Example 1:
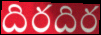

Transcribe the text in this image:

దిరదిర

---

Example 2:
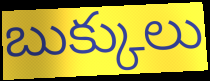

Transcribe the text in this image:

బుక్కులు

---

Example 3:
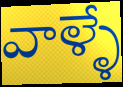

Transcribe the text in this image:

వాళ్ళే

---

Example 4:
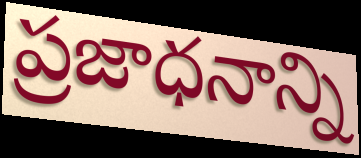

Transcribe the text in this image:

ప్రజాధనాన్ని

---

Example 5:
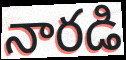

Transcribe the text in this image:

నారడి